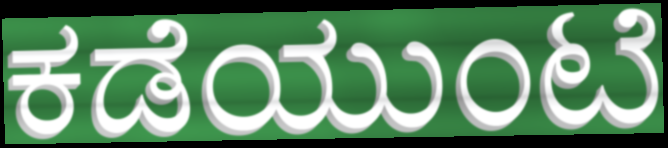
ಕಡೆಯುಂಟೆ